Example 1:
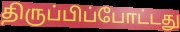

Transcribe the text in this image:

திருப்பிப்போட்டது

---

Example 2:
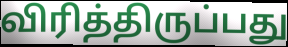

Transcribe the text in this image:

விரித்திருப்பது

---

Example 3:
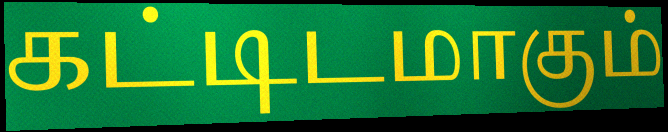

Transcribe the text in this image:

கட்டிடமாகும்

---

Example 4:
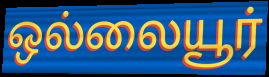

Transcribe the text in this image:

ஒல்லையூர்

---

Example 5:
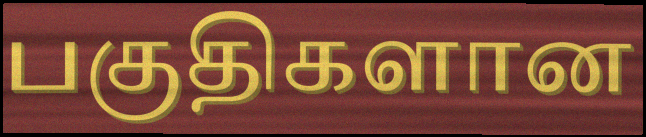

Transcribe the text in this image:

பகுதிகளான